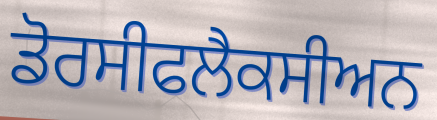
ਡੋਰਸੀਫਲੈਕਸੀਅਨ